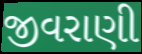
જીવરાણી